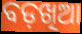
ବଡ଼ଖିଆ